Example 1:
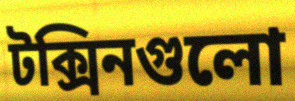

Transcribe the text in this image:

টক্সিনগুলো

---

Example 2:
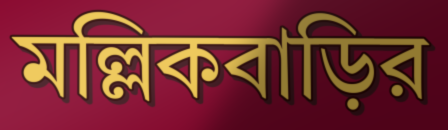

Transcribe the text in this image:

মল্লিকবাড়ির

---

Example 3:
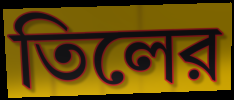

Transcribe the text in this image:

তিলের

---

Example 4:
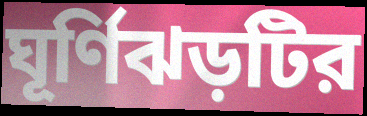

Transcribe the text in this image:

ঘূর্ণিঝড়টির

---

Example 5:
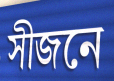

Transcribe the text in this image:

সীজনে